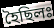
হৈছিলঃ